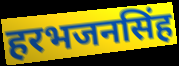
हरभजनसिंह